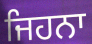
ਜਿਹਨਾ